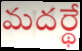
మదర్థే